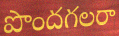
పొందగలరా